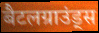
बैटलग्राउंड्स